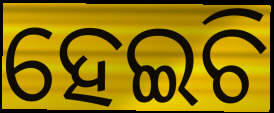
ହେଇଚି